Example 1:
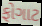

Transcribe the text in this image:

ફોગાટ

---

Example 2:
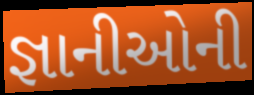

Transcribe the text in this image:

જ્ઞાનીઓની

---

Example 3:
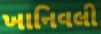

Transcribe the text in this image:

ખાનિવલી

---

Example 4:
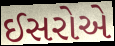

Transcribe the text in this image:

ઈસરોએ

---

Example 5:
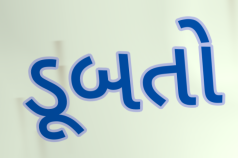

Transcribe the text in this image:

ડૂબતો